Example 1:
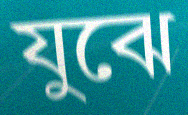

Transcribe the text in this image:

যুঝে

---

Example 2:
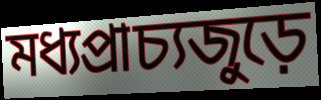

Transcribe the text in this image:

মধ্যপ্রাচ্যজুড়ে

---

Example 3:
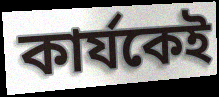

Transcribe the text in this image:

কার্যকেই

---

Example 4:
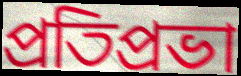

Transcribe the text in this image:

প্রতিপ্রভা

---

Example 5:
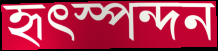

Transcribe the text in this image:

হৃৎস্পন্দন